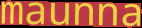
maunna